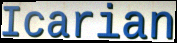
Icarian